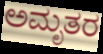
ಅಮೃತರ